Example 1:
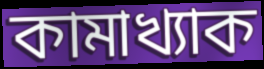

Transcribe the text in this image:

কামাখ্যাক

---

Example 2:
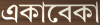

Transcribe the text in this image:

একাবেকা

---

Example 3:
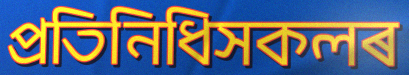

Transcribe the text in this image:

প্ৰতিনিধিসকলৰ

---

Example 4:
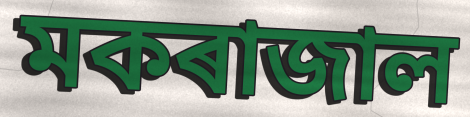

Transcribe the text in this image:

মকৰাজাল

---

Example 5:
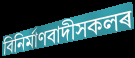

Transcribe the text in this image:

বিনিৰ্মাণবাদীসকলৰ